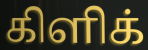
கிளிக்